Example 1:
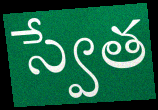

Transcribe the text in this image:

స్వేత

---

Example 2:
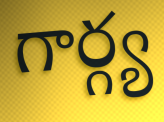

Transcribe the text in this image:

గార్గ్య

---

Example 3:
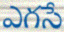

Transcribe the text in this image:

ఎగసే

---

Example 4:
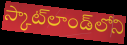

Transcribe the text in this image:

స్కాట్‌లాండ్‌లోని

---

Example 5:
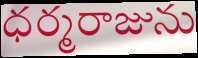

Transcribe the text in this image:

ధర్మరాజును